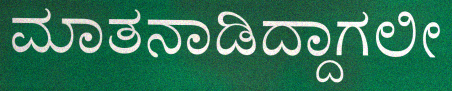
ಮಾತನಾಡಿದ್ದಾಗಲೀ